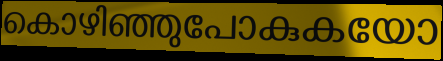
കൊഴിഞ്ഞുപോകുകയോ